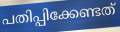
പതിപ്പിക്കേണ്ടത്